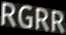
RGRR